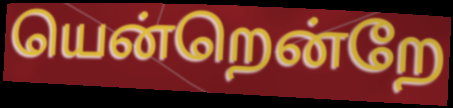
யென்றென்றே